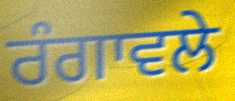
ਰੰਗਾਵਲੇ